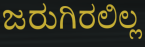
ಜರುಗಿರಲಿಲ್ಲ